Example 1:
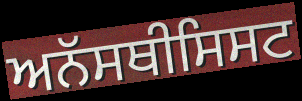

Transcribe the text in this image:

ਅਨੱਸਥੀਸਿਸਟ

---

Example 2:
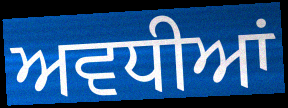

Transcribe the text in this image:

ਅਵਧੀਆਂ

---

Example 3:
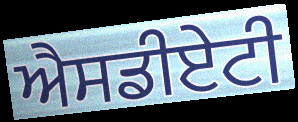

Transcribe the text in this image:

ਐਸਡੀਏਟੀ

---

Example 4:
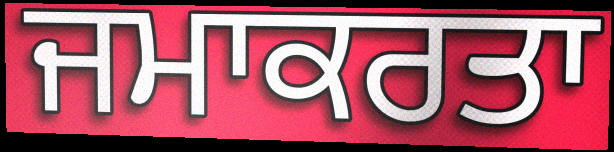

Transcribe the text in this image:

ਜਮਾਕਰਤਾ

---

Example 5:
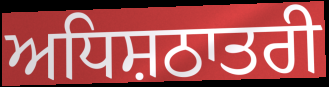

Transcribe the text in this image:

ਅਧਿਸ਼ਠਾਤਰੀ